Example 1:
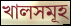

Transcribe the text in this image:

খালসমূহ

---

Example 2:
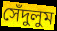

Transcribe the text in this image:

সেঁদুলুম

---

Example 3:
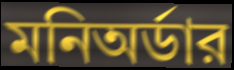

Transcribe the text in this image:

মনিঅর্ডার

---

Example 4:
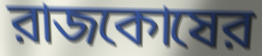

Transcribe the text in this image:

রাজকোষের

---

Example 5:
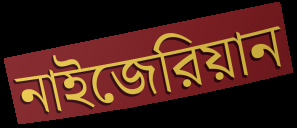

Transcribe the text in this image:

নাইজেরিয়ান